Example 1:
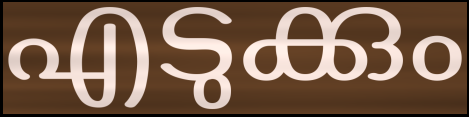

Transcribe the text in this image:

എടുക്കും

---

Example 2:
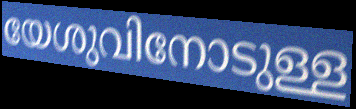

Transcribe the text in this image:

യേശുവിനോടുള്ള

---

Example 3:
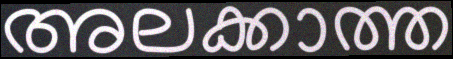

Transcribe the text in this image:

അലക്കാത്ത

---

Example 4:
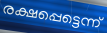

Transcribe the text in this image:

രക്ഷപ്പെട്ടെന്ന്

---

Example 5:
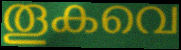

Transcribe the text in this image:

തൂകവെ